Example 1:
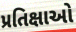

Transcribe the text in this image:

પ્રતિક્ષાઓ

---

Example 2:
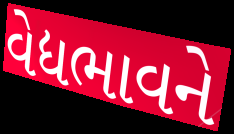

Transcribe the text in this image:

વેદ્યભાવને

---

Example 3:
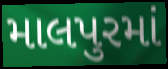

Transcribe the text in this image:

માલપુરમાં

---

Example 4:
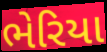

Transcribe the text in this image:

ભેરિયા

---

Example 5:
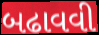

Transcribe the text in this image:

બઢાવવી